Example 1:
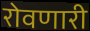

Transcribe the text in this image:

रोवणारी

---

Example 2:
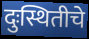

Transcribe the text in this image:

दुःस्थितीचे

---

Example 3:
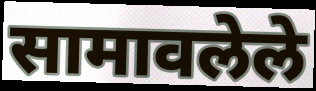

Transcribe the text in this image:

सामावलेले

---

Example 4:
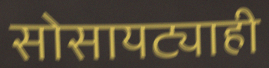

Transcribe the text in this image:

सोसायट्याही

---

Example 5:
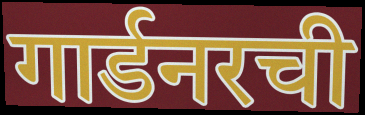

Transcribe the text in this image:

गार्डनरची